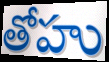
తోహు